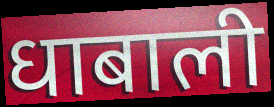
धाबाली